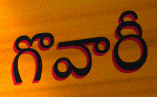
గొవారీ